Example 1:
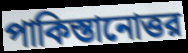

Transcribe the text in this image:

পাকিস্তানোত্তর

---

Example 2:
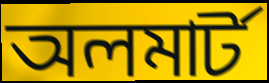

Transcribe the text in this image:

অলমার্ট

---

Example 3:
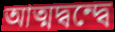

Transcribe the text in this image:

আত্মদ্বন্দ্বে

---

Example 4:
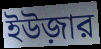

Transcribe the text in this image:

ইউজ়ার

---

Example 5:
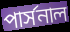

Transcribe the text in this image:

পার্সনাল